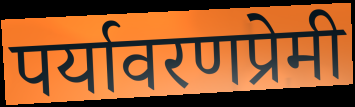
पर्यावरणप्रेमी